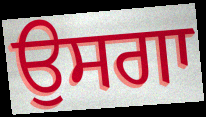
ਉਸਗਾ